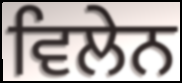
ਵਿਲੇਨ